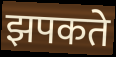
झपकते